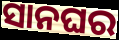
ସାନଘର